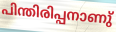
പിന്തിരിപ്പനാണു്